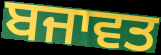
ਬਜਾਵਤ